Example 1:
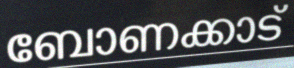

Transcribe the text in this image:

ബോണക്കാട്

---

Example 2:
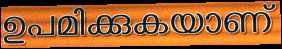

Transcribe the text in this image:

ഉപമിക്കുകയാണ്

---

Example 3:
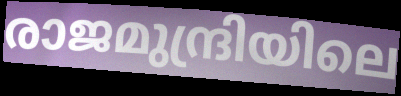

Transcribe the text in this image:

രാജമുന്ദ്രിയിലെ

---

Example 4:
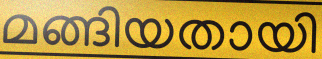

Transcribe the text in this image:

മങ്ങിയതായി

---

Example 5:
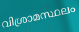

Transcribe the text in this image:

വിശ്രാമസ്ഥലം